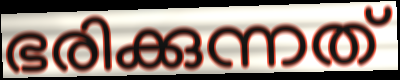
ഭരിക്കുന്നത്